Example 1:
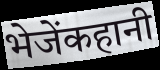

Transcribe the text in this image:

भेजेंकहानी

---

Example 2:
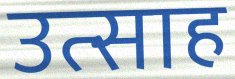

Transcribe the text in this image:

उत्साह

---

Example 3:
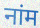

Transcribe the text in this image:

नांम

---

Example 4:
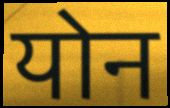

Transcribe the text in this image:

योन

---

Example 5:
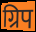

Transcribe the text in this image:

ग्रिप